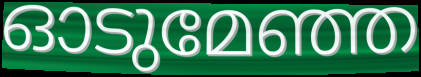
ഓടുമേഞ്ഞ